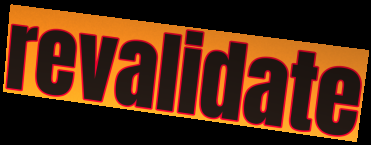
revalidate